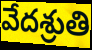
వేదశ్రుతి